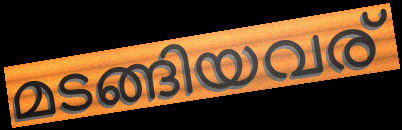
മടങ്ങിയവര്